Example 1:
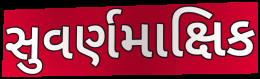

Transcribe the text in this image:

સુવર્ણમાક્ષિક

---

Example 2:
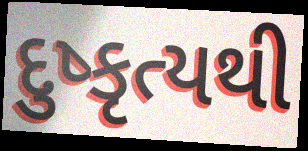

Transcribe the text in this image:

દુષ્કૃત્યથી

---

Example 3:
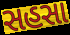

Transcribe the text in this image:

સહસા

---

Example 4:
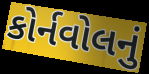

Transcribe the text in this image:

કોર્નવોલનું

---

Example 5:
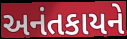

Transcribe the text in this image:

અનંતકાયને